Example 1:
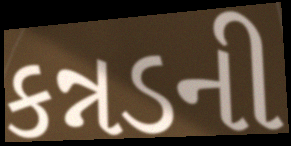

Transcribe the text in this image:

કન્નડની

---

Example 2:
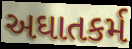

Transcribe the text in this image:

અઘાતકર્મ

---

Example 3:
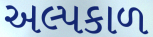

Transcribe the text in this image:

અલ્પકાળ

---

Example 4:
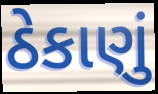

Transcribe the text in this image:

ઠેકાણું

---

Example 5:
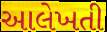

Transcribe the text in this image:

આલેખતી